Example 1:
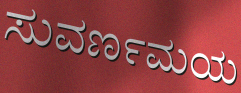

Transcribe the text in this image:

ಸುವರ್ಣಮಯ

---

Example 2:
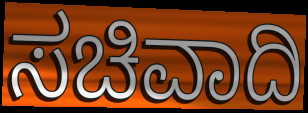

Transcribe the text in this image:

ಸಚಿವಾದಿ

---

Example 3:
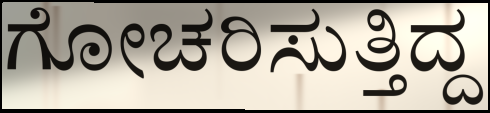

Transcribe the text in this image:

ಗೋಚರಿಸುತ್ತಿದ್ದ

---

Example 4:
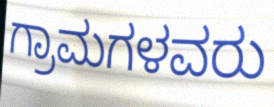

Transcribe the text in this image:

ಗ್ರಾಮಗಳವರು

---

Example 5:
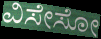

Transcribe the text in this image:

ವಿಸೇಸೋ